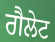
ਗੈਲੇਟ